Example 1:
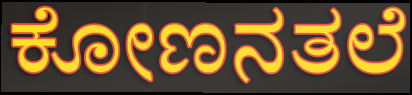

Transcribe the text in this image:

ಕೋಣನತಲೆ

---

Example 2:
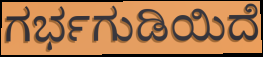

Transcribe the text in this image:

ಗರ್ಭಗುಡಿಯಿದೆ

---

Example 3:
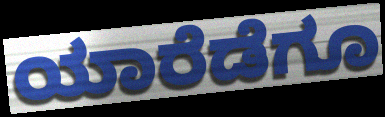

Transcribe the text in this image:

ಯಾರೆಡೆಗೂ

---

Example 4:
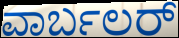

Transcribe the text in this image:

ವಾರ್ಬಲರ್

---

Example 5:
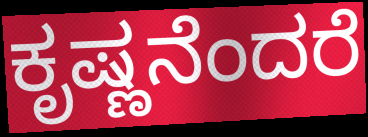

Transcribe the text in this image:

ಕೃಷ್ಣನೆಂದರೆ